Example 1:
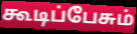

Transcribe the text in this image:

கூடிப்பேசும்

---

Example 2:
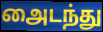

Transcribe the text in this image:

அைடந்து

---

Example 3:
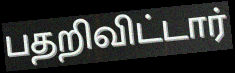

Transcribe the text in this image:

பதறிவிட்டார்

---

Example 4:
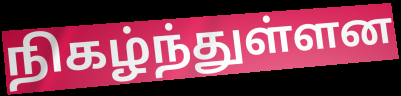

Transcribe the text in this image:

நிகழ்ந்துள்ளன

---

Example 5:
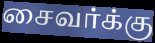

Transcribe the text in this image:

சைவர்க்கு